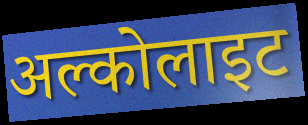
अल्कोलाइट